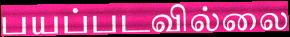
பயப்படவில்லை